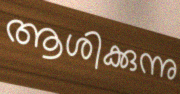
ആശിക്കുന്നു